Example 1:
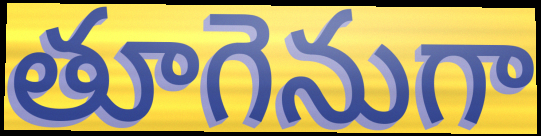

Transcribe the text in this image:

తూగెనుగా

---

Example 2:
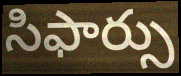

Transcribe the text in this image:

సిఫార్సు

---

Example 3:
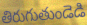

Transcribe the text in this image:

తిరుగుతుండెడి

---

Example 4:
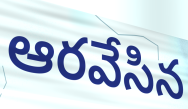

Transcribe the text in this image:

ఆరవేసిన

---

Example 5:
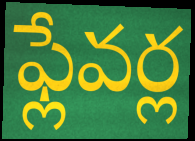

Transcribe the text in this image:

ఫ్లేవర్ల